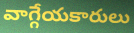
వాగ్గేయకారులు